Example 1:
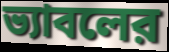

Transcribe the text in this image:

ভ্যাবলের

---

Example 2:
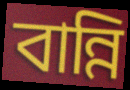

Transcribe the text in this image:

বান্নি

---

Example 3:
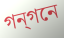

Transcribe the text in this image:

গন্গনে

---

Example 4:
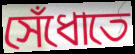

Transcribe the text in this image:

সেঁধোতে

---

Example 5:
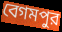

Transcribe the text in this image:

বেগমপুর